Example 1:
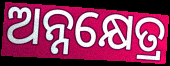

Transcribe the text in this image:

ଅନ୍ନକ୍ଷେତ୍ର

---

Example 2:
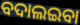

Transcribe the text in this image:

ବଦାଲଇବା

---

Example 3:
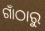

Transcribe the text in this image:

ଗାଁଠାରୁ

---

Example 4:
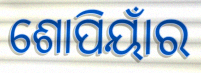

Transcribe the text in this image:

ଶୋପିୟାଁର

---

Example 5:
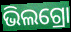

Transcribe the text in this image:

ଭିଲଗ୍ରୋ